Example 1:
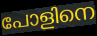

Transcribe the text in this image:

പോളിനെ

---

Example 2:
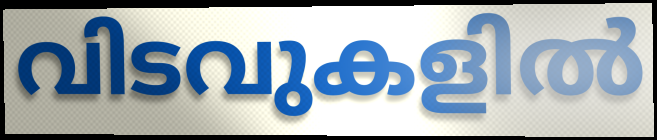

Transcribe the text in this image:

വിടവുകളിൽ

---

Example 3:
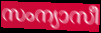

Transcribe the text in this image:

സംന്യാസീ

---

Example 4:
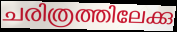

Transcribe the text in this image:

ചരിത്രത്തിലേക്കു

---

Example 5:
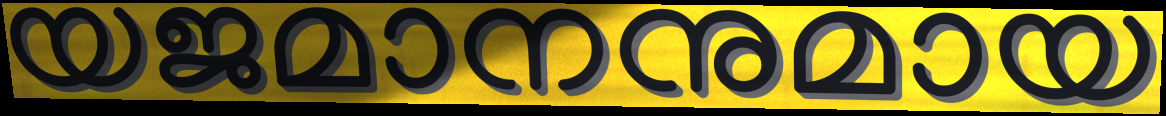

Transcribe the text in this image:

യജമാനനുമായ